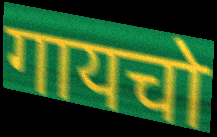
गायचो